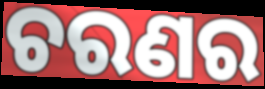
ଚରଣର